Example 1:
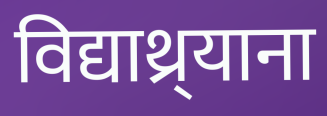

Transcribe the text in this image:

विद्याथ्र्याना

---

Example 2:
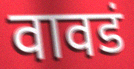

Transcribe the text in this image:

वावडं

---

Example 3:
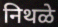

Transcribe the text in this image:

निथळे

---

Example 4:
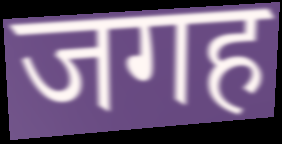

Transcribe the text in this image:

जगह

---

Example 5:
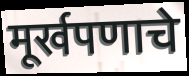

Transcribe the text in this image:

मूर्खपणाचे